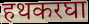
हथकरघा